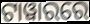
ଟାୱାରରେ